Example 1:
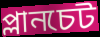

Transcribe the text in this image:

প্লানচেট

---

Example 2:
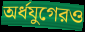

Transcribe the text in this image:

অর্ধযুগেরও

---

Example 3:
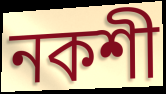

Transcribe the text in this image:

নকশী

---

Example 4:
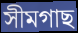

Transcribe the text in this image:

সীমগাছ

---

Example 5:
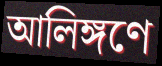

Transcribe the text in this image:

আলিঙ্গণে